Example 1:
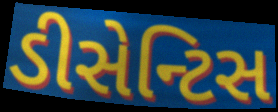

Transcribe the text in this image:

ડીસેન્ટિસ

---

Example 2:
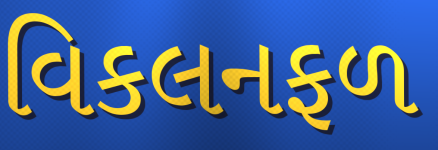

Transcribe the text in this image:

વિકલનફળ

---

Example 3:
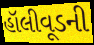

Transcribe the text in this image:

હૉલીવૂડની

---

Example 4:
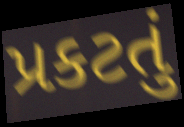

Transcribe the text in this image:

પ્રકટતું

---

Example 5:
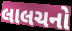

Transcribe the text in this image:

લાલચનો